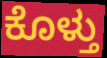
ಕೊಳ್ತು